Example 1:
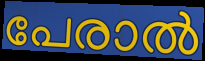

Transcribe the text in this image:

പേരാൽ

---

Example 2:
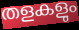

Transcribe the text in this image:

തളകളും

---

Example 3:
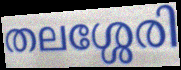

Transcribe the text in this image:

തലശ്ശേരി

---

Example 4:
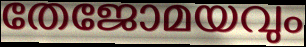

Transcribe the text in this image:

തേജോമയവും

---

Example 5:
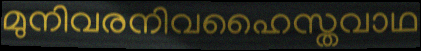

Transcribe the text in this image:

മുനിവരനിവഹൈസ്തവാഥ